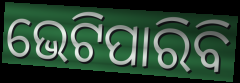
ଭେଟିପାରିବି